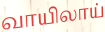
வாயிலாய்